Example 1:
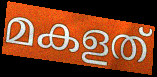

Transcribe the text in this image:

മകളത്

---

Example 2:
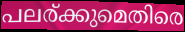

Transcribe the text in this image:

പലര്ക്കുമെതിരെ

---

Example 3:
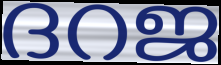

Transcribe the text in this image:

ദറജ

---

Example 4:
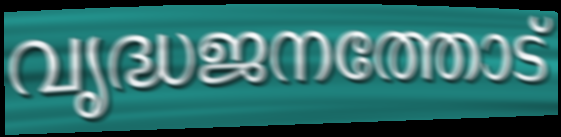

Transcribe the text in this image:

വൃദ്ധജനത്തോട്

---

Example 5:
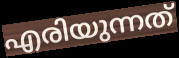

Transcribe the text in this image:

എരിയുന്നത്